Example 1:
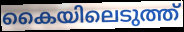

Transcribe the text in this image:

കൈയിലെടുത്ത്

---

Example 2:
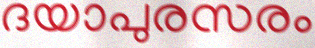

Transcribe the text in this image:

ദയാപുരസരം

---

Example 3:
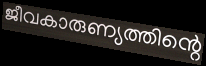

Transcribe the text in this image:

ജീവകാരുണ്യത്തിന്റെ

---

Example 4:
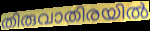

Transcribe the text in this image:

തിരുവാതിരയിൽ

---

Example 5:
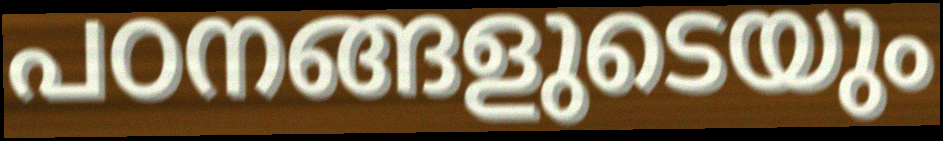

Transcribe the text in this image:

പഠനങ്ങളുടെയും